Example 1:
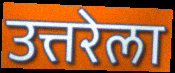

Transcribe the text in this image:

उत्तरेला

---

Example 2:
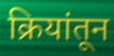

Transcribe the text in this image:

क्रियांतून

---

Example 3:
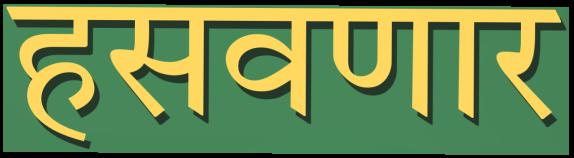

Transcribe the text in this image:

हसवणार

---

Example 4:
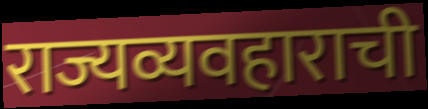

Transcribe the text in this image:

राज्यव्यवहाराची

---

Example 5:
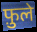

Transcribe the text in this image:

फ़ुले